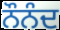
ਨੌਨੰਦ